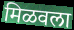
मिळवला